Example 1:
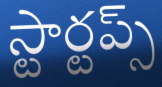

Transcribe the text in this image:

స్టార్టప్స్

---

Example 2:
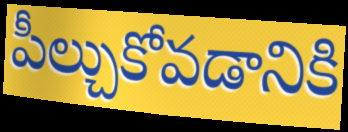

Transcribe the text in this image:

పీల్చుకోవడానికి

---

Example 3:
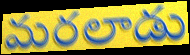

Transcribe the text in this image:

మరలాడు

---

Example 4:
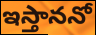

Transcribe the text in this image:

ఇస్తాననో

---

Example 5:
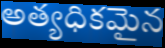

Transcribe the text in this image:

అత్యధికమైన